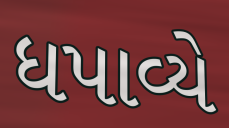
ધપાવ્યે